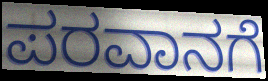
ಪರವಾನಗೆ